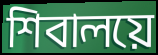
শিবালয়ে